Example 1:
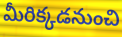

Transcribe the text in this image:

మీరిక్కడనుంచి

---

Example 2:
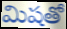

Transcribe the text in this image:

మిషతో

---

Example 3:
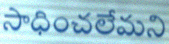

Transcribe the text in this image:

సాధించలేమని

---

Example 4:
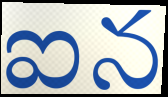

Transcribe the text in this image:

ఐన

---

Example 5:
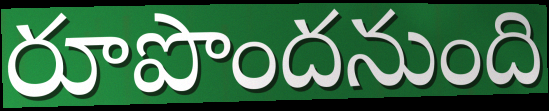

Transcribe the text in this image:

రూపొందనుంది